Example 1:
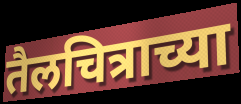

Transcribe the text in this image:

तैलचित्राच्या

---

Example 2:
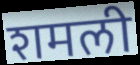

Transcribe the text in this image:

शमली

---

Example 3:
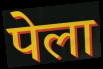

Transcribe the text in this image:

पेला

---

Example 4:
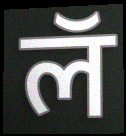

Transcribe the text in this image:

लॅ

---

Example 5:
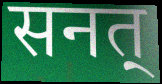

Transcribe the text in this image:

सनत्